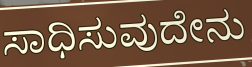
ಸಾಧಿಸುವುದೇನು